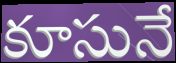
కూసునే